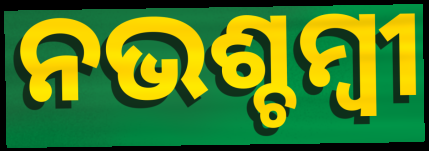
ନଭଶ୍ଚମ୍ବୀ